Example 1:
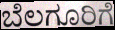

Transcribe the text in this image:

ಬೆಲಗೂರಿಗೆ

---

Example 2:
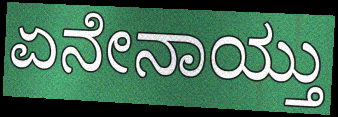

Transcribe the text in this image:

ಏನೇನಾಯ್ತು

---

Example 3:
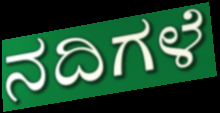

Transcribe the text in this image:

ನದಿಗಳೆ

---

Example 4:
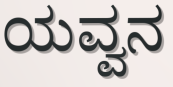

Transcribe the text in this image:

ಯವ್ವನ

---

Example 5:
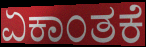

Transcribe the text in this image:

ಏಕಾಂತಕೆ